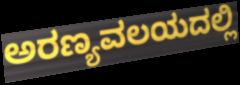
ಅರಣ್ಯವಲಯದಲ್ಲಿ